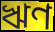
ঋণ